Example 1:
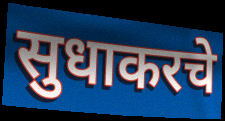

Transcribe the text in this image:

सुधाकरचे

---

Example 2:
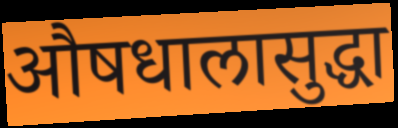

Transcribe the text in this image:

औषधालासुद्धा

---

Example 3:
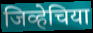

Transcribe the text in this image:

जिव्हेचिया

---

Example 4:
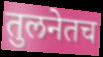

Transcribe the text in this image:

तुलनेतच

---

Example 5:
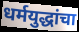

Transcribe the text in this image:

धर्मयुद्धांचा